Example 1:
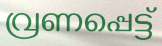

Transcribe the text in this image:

വ്രണപ്പെട്ട്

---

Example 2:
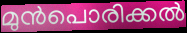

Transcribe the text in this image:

മുൻപൊരിക്കൽ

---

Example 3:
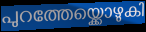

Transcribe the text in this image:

പുറത്തേയ്ക്കൊഴുകി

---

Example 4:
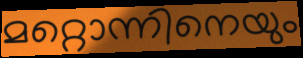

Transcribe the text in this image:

മറ്റൊന്നിനെയും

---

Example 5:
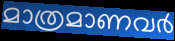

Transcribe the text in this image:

മാത്രമാണവർ